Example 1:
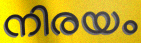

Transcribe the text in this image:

നിരയം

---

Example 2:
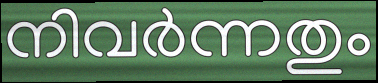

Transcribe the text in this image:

നിവർന്നതും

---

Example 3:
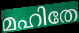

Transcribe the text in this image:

മഹിതേ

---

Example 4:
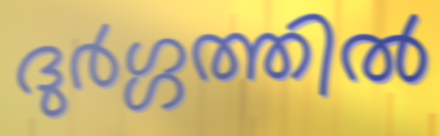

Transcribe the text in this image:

ദുർഗ്ഗത്തിൽ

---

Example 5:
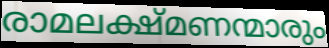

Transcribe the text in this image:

രാമലക്ഷ്മണന്മാരും